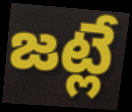
జట్లే